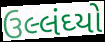
ઉલ્લંઘ્યો